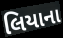
લિયાના